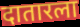
दातारला